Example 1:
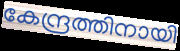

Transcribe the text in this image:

കേന്ദ്രത്തിനായി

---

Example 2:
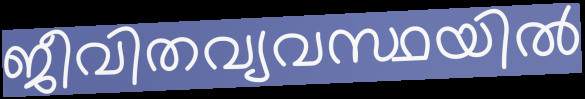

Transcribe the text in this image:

ജീവിതവ്യവസ്ഥയിൽ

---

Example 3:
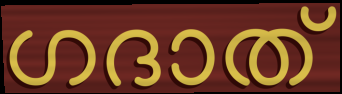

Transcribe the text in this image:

ഗദാത്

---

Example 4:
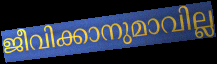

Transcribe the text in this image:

ജീവിക്കാനുമാവില്ല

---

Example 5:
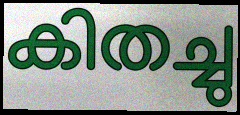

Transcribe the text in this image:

കിതച്ചു